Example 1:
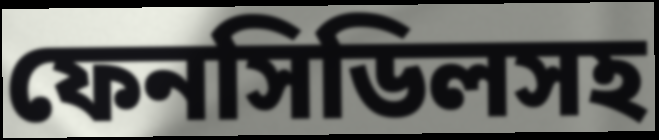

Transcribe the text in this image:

ফেনসিডিলসহ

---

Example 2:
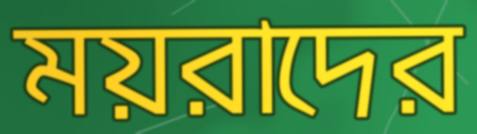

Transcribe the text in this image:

ময়রাদের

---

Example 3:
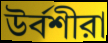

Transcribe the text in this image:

উর্বশীরা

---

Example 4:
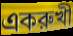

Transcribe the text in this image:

একরুখী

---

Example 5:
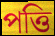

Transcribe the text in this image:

পত্তি